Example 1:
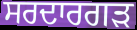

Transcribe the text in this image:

ਸਰਦਾਰਗੜ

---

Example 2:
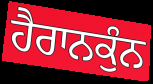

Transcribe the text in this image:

ਹੈਰਾਨਕੁੰਨ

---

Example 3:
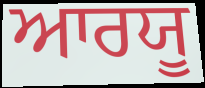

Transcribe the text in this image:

ਆਰਯੂ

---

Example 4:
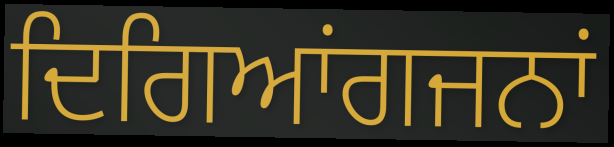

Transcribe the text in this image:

ਦਿਗਿਆਂਗਜਨਾਂ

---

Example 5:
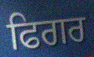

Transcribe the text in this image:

ਫਿਗਰ